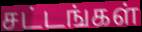
சட்டங்கள்